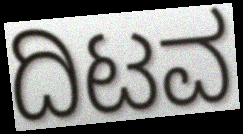
ದಿಟವ